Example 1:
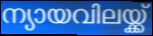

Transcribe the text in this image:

ന്യായവിലയ്ക്ക്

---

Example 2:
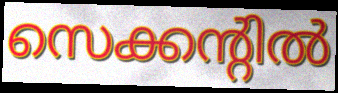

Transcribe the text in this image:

സെക്കന്റിൽ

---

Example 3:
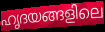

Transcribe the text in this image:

ഹൃദയങ്ങളിലെ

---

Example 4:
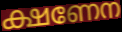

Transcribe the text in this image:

ക്ഷണേന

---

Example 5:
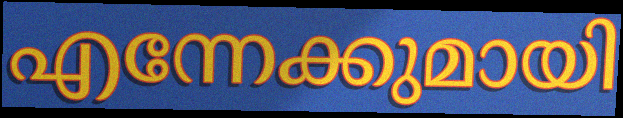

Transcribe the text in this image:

എന്നേക്കുമായി